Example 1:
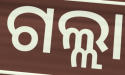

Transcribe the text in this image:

ଗଲ୍ଲା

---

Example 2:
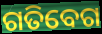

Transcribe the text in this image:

ଗତିବେଗ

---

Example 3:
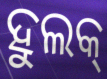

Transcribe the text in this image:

ହୁଲକ୍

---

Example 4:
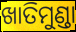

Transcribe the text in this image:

ଖାତିମୁଣ୍ଡା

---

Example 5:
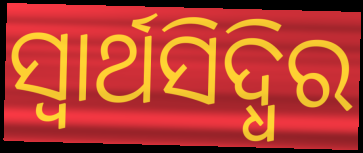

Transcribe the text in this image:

ସ୍ଵାର୍ଥସିଦ୍ଧିର